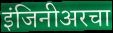
इंजिनीअरचा